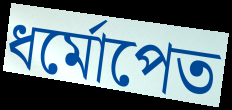
ধর্মোপেত